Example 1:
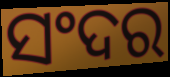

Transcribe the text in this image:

ସଂଦର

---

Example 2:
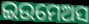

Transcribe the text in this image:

ଇଉମେଅସ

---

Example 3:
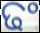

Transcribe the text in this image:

ଢଂ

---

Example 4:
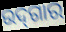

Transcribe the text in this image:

ଉଦ୍‌ଗାର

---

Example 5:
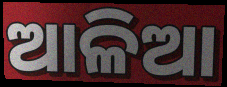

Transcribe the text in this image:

ଆଳିଆ